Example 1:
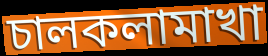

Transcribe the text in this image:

চালকলামাখা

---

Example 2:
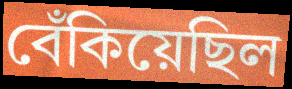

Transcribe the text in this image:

বেঁকিয়েছিল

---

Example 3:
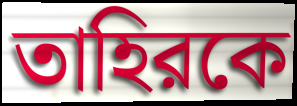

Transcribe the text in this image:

তাহিরকে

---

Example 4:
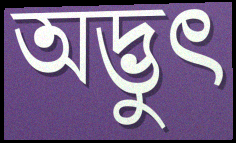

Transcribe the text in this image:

অদ্ভুৎ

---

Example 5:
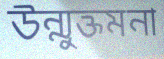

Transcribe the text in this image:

উন্মুক্তমনা